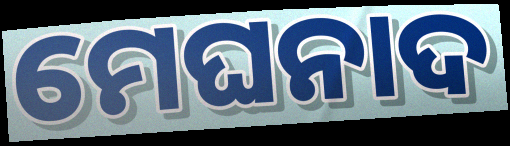
ମେଘନାଦ